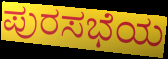
ಪುರಸಭೆಯ